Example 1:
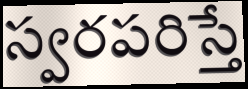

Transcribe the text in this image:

స్వరపరిస్తే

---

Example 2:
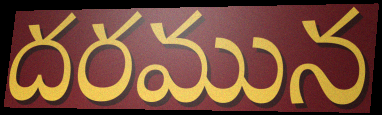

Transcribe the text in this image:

దరమున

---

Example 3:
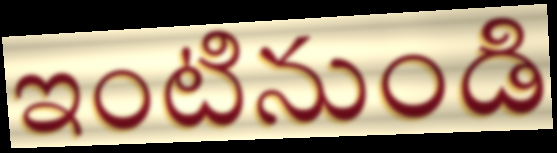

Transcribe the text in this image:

ఇంటినుండి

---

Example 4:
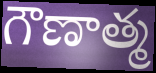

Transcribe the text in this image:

గౌణాత్మ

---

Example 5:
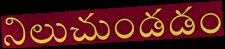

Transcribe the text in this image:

నిలుచుండడం